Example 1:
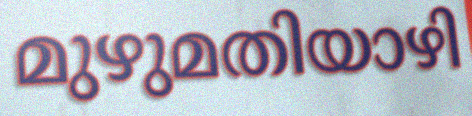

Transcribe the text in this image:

മുഴുമതിയാഴി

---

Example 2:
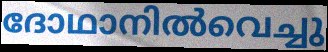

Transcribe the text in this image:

ദോഥാനിൽവെച്ചു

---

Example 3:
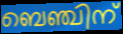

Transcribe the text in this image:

ബെഞ്ചിന്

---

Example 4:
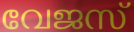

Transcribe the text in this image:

വേജസ്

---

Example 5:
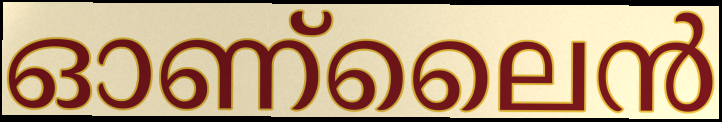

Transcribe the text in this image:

ഓണ്ലൈൻ